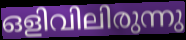
ഒളിവിലിരുന്നു